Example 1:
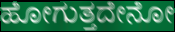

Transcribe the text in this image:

ಹೋಗುತ್ತದೇನೋ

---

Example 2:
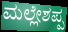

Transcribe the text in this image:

ಮಲ್ಲೇಶಪ್ಪ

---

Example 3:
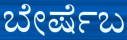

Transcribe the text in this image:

ಬೇರ್ಷೆಬ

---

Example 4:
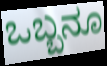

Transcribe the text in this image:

ಒಬ್ಬನೂ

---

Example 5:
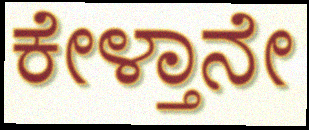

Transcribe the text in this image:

ಕೇಳ್ತಾನೇ